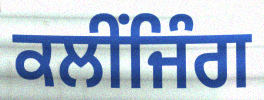
ਕਲੀਂਜਿੰਗ